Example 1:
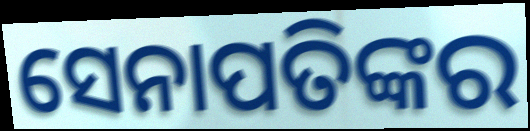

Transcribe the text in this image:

ସେନାପତିଙ୍କର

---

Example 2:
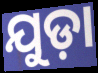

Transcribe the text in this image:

ଯୁଡ଼ା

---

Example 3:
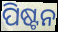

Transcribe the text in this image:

ପିଷ୍ଟନ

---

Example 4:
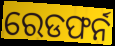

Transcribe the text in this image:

ରେଡଫର୍ନ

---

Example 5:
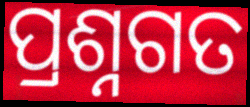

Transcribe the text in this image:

ପ୍ରଶ୍ନଗତ